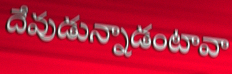
దేవుడున్నాడంటావా